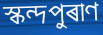
স্কন্দপুৰাণ